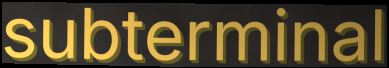
subterminal